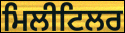
ਮਿਲੀਟਿਲਰ